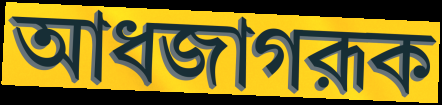
আধজাগরূক